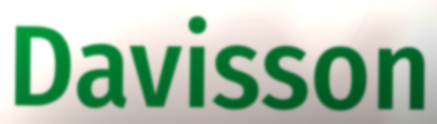
Davisson